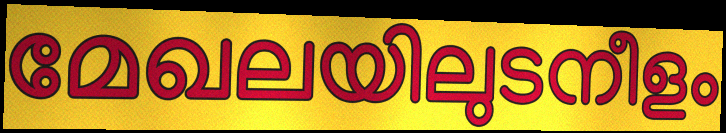
മേഖലയിലുടനീളം